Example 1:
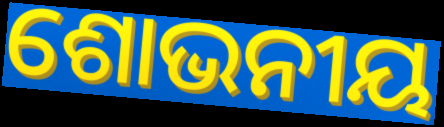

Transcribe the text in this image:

ଶୋଭନୀୟ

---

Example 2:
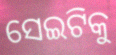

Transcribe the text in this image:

ସେଇଟିକୁ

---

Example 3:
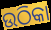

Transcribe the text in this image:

ଉଠିକା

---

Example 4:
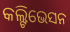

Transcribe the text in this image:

କଲ୍ଟିଭେସନ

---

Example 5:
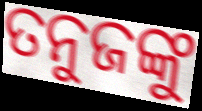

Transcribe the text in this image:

ତନୁଜଙ୍କୁ